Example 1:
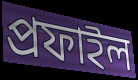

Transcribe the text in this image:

প্ৰফাইল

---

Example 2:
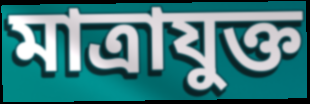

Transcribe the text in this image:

মাত্ৰাযুক্ত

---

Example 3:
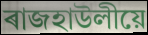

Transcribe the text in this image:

ৰাজহাউলীয়ে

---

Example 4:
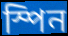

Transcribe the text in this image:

স্পিন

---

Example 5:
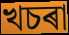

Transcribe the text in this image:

খচৰা